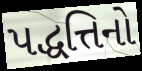
પદ્ધત્તિનો